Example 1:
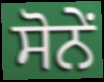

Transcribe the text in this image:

ਸੋਨੇਂ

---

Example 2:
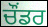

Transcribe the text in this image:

ਚੌਂਡਰ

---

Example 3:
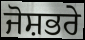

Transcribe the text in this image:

ਜੋਸ਼ਭਰੇ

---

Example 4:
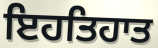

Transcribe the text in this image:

ਇਹਤਿਹਾਤ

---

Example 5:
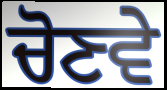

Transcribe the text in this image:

ਚੋਣਵੇ